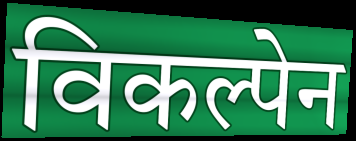
विकल्पेन